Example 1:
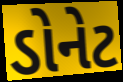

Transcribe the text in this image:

ડોનેટ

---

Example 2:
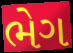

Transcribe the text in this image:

ભેગ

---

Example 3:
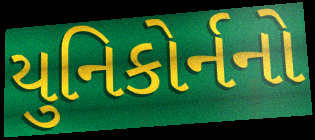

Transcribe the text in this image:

યુનિકોર્નનો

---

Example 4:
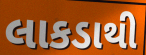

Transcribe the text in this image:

લાકડાથી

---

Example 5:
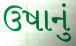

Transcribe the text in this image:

ઉષાનું